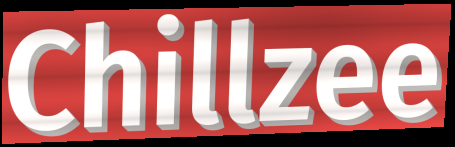
Chillzee